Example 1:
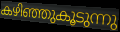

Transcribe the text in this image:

കഴിഞ്ഞുകൂടുന്നു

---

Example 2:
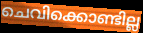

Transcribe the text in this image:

ചെവിക്കൊണ്ടില്ല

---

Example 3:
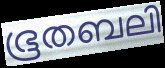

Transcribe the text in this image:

ഭൂതബലി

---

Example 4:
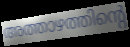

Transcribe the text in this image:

അത്താഴത്തിന്റെ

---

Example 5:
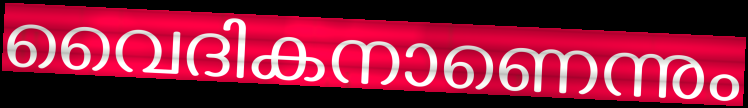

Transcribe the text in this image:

വൈദികനാണെന്നും